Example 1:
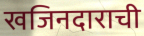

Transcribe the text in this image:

खजिनदाराची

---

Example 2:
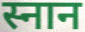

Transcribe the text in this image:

स्नान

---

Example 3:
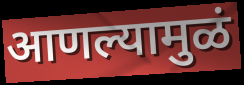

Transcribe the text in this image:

आणल्यामुळं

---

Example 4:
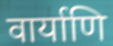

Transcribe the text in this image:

वार्याणि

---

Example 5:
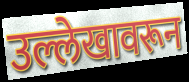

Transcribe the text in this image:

उल्लेखावरून